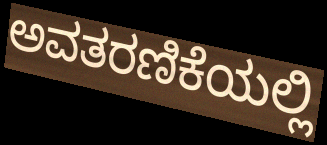
ಅವತರಣಿಕೆಯಲ್ಲಿ